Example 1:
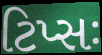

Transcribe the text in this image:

ટિપ્સઃ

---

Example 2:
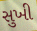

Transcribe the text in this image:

સુખી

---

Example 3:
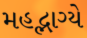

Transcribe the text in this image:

મહદ્ભાગ્યે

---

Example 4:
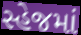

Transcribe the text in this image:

સ્હેજમાં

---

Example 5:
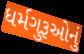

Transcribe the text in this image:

ધર્મગુરૂઓનું